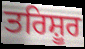
ਤਰਿਸ਼ੂਰ